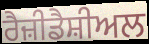
ਰੈਜ਼ੀਡੈਸ਼ੀਅਲ